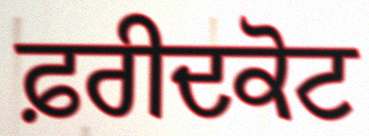
ਫ਼ਰੀਦਕੋਟ